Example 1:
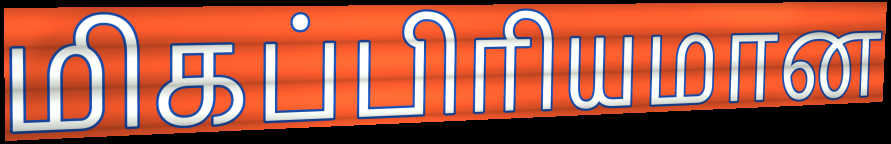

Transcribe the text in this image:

மிகப்பிரியமான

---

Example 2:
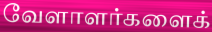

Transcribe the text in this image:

வேளாளர்களைக்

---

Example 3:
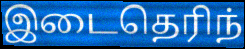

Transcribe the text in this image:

இடைதெரிந்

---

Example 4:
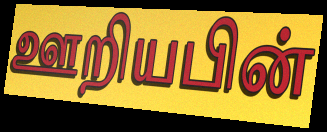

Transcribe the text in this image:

ஊறியபின்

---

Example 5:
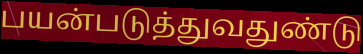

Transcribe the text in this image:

பயன்படுத்துவதுண்டு